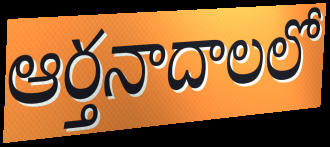
ఆర్తనాదాలలో